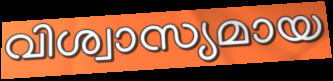
വിശ്വാസ്യമായ